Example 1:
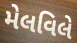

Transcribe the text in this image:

મેલવિલે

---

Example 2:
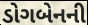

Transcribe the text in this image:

ડોગબેનની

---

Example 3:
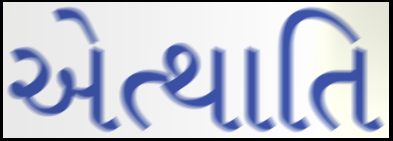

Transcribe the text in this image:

એત્થાતિ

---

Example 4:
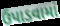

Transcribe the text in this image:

ઉપાડવામાં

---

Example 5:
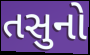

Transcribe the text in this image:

તસુનો